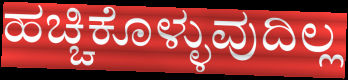
ಹಚ್ಚಿಕೊಳ್ಳುವುದಿಲ್ಲ